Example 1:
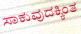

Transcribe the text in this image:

ಸಾಕುವುದಕ್ಕಿಂತ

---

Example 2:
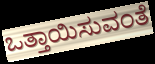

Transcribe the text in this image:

ಒತ್ತಾಯಿಸುವಂತೆ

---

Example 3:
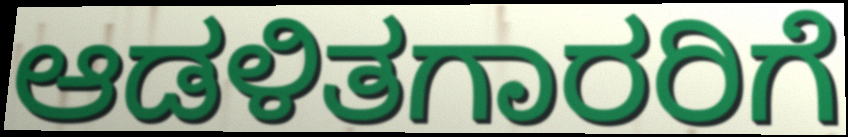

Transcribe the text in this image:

ಆಡಳಿತಗಾರರಿಗೆ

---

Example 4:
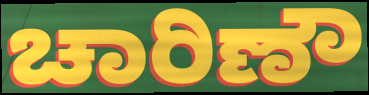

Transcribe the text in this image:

ಚಾರಿಣೌ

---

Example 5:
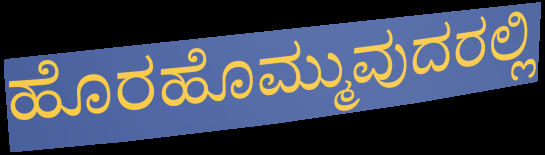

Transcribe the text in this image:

ಹೊರಹೊಮ್ಮುವುದರಲ್ಲಿ